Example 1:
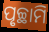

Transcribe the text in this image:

ପୃଚ୍ଛାମି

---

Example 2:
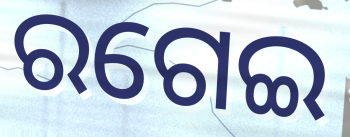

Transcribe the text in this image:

ରଗେଇ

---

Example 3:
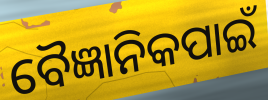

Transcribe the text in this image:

ବୈଜ୍ଞାନିକପାଇଁ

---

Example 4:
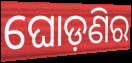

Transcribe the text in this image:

ଘୋଡ଼ଣିର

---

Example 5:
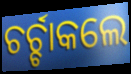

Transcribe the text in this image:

ଚର୍ଚ୍ଚାକଲେ